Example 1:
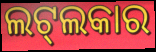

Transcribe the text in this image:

ଲଟ୍‌ଲକାର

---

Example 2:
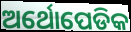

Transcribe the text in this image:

ଅର୍ଥୋପେଡିକ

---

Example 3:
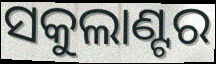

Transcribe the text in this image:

ସକୁଲାଣ୍ଟର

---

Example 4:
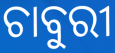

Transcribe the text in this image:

ଚାବୁରୀ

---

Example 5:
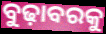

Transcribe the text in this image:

ବୁଢ଼ାବରକୁ